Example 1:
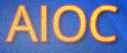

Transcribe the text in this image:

AIOC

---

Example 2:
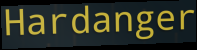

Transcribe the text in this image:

Hardanger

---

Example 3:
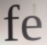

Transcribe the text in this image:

fe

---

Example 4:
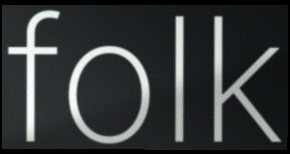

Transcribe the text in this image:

folk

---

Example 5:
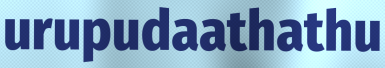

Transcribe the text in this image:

urupudaathathu